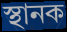
স্থানক